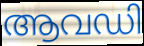
ആവഡി